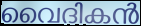
വൈദികൻ